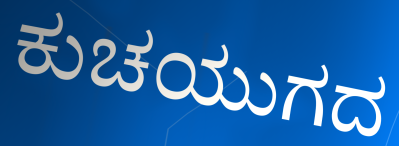
ಕುಚಯುಗದ